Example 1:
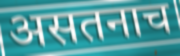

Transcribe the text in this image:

असतनाच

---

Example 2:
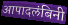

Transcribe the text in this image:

आपादलंबिनी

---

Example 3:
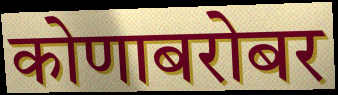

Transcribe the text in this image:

कोणाबरोबर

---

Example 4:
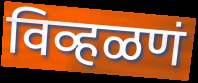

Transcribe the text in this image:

विव्हळणं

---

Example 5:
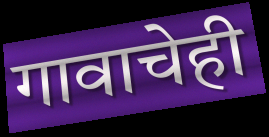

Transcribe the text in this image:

गावाचेही